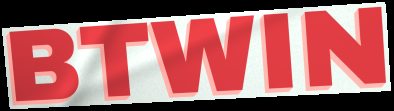
BTWIN